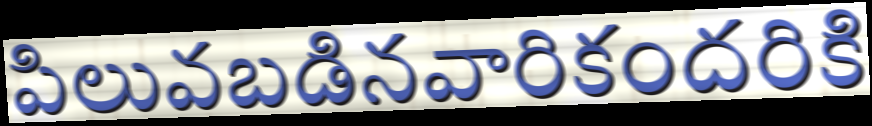
పిలువబడినవారికందరికి